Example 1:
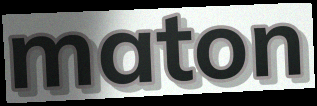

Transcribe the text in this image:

maton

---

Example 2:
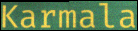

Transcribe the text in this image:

Karmala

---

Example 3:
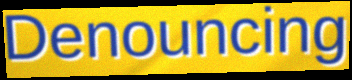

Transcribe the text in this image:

Denouncing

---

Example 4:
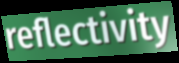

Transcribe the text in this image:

reflectivity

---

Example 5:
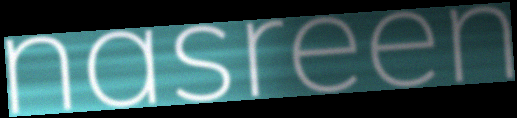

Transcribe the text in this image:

nasreen